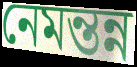
নেমন্তন্ন